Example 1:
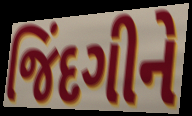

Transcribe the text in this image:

જિંદગીને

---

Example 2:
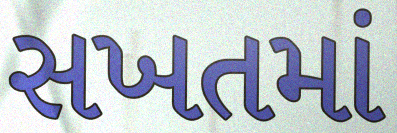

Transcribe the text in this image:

સખતમાં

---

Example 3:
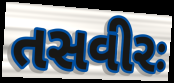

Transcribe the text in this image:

તસવીરઃ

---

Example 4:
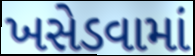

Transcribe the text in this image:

ખસેડવામાં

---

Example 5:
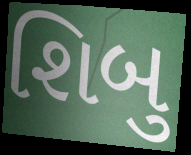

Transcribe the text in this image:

શિબુ